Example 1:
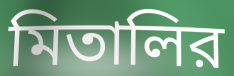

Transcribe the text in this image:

মিতালির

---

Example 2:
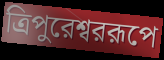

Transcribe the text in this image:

ত্রিপুরেশ্বররূপে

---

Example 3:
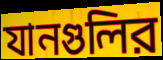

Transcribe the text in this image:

যানগুলির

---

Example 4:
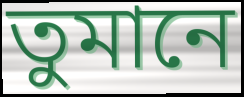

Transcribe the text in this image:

তুমানে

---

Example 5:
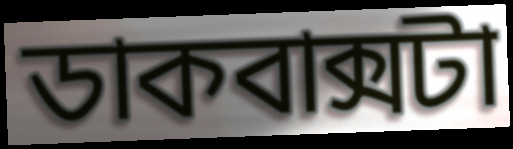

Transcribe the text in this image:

ডাকবাক্সটা